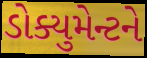
ડોક્યુમેન્ટને